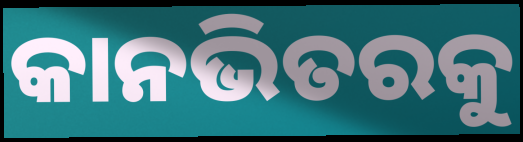
କାନଭିତରକୁ